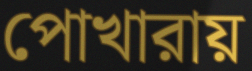
পোখারায়